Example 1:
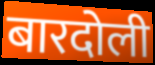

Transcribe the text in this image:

बारदोली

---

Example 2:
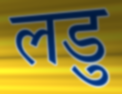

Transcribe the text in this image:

लडु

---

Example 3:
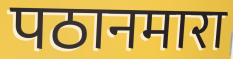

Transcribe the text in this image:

पठानमारा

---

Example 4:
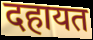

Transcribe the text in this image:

दहायत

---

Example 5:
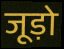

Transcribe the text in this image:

जूड़ो